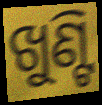
ଖୁଣ୍ଟି